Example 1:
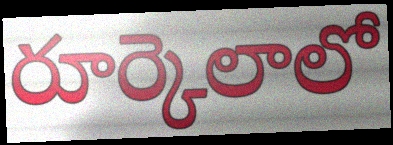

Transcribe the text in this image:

రూర్కెలాలో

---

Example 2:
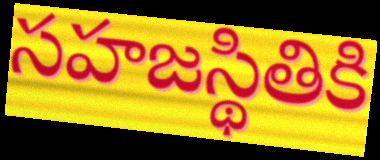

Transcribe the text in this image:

సహజస్థితికి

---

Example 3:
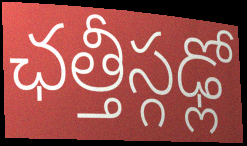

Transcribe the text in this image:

ఛత్తీస్గఢ్లో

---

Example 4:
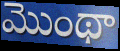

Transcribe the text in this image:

మొంథా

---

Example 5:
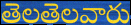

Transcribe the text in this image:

తెలతెలవారు